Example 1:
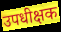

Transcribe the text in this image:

उपधीक्षक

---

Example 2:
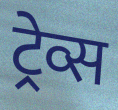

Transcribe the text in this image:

ट्रेव्स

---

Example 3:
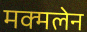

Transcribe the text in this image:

मक्मलेन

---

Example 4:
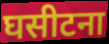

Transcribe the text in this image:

घसीटना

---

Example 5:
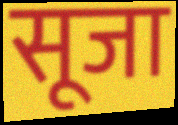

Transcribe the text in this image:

सूजा